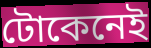
টোকেনেই